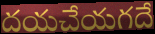
దయచేయగదే